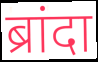
ब्रांदा